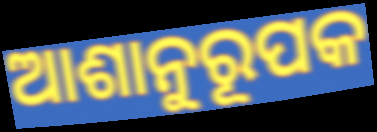
ଆଶାନୁରୂପକ